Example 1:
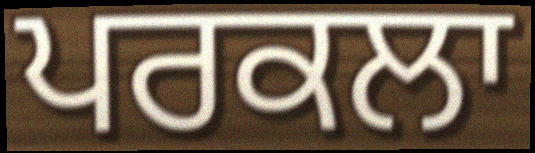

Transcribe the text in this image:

ਪਰਕਲਾ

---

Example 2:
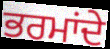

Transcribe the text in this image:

ਭਰਮਾਂਦੇ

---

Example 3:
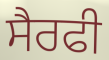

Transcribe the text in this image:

ਸੈਰਫੀ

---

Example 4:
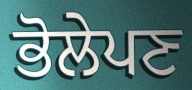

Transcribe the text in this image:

ਭੋਲੇਪਣ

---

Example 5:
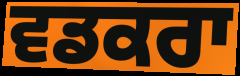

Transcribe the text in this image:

ਵਡਕਰਾ